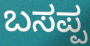
ಬಸಪ್ಪ